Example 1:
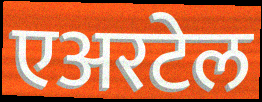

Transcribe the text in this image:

एअरटेल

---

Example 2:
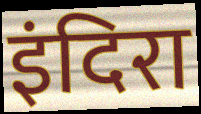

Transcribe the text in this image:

इंदिरा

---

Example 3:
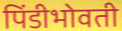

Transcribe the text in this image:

पिंडीभोवती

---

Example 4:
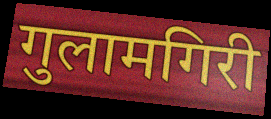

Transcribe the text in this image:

गुलामगिरी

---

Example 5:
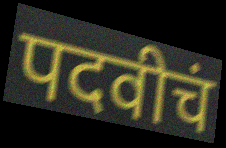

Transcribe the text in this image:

पदवीचं